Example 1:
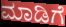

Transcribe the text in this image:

ಮಾಡಿಗೆ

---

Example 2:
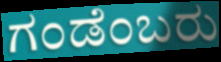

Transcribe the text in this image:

ಗಂಡೆಂಬರು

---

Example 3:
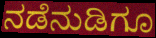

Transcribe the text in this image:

ನಡೆನುಡಿಗೂ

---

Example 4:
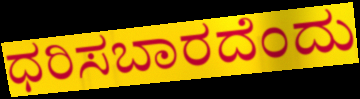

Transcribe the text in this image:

ಧರಿಸಬಾರದೆಂದು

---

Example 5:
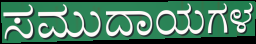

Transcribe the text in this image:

ಸಮುದಾಯಗಳ